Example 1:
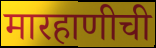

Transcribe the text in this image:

मारहाणीची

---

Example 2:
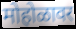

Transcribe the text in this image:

मोहोळावर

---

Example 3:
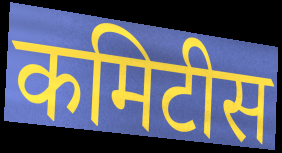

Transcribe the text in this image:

कमिटीस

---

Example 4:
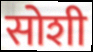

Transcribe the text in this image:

सोशी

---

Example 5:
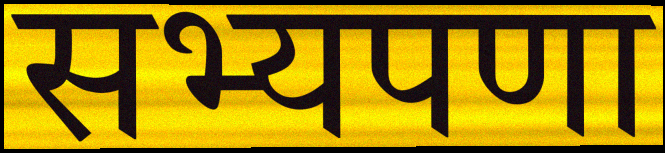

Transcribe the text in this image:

सभ्यपणा